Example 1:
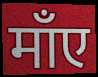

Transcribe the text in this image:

माँए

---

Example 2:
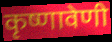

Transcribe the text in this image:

कृष्णावेणी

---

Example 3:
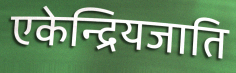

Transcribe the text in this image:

एकेन्द्रियजाति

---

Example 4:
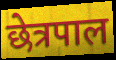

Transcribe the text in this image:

छेत्रपाल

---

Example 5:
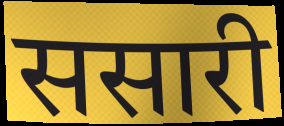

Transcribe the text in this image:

ससारी